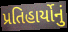
પ્રતિહાર્યોનું